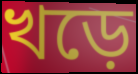
খড়ে